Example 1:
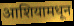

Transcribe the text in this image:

आशियामधून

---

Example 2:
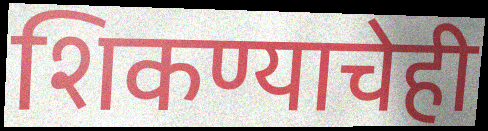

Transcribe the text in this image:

शिकण्याचेही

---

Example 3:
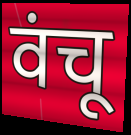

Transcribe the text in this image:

वंचू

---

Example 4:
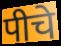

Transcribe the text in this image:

पीचे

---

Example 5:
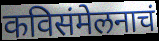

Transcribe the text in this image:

कविसंमेलनाचं